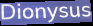
Dionysus